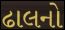
ઢાલનો